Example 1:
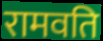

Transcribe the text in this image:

रामवति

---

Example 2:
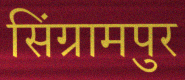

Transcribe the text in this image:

सिंग्रामपुर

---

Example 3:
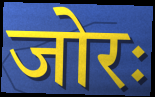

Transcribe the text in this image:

जोरः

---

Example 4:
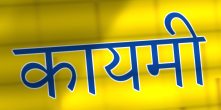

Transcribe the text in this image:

कायमी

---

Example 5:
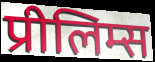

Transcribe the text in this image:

प्रीलिम्स